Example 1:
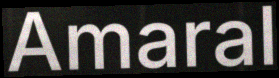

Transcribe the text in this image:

Amaral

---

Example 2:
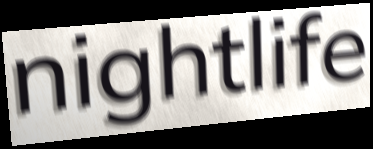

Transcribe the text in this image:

nightlife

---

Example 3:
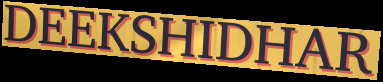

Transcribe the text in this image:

DEEKSHIDHAR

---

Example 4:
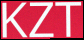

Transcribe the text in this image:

KZT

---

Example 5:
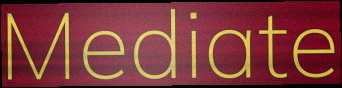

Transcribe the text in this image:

Mediate